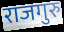
राजगुरु